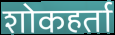
शोकहर्ता